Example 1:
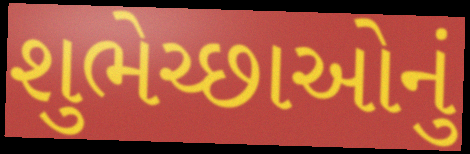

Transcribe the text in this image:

શુભેચ્છાઓનું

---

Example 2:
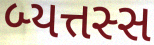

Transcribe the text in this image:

બ્યત્તસ્સ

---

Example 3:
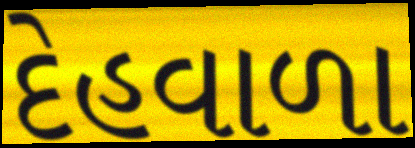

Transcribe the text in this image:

દેહવાળા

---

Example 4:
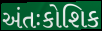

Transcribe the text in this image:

અંતઃકોશિક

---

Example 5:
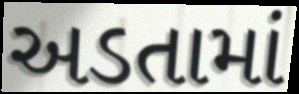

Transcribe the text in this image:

અડતામાં